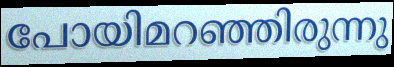
പോയിമറഞ്ഞിരുന്നു